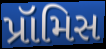
પ્રૉમિસ